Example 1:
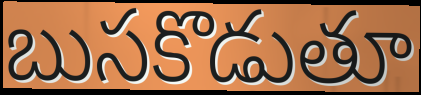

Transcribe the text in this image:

బుసకొడుతూ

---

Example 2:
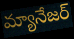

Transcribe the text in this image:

మ్యానేజర్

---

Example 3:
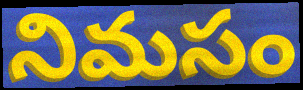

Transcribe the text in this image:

నిమసం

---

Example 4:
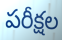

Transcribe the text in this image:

పరీక్షల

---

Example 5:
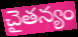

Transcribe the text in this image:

చైతన్యం